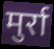
मुर्रा